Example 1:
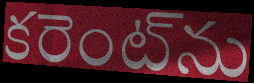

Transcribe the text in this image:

కరెంట్‌ను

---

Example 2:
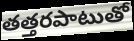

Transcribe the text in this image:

తత్తరపాటుతో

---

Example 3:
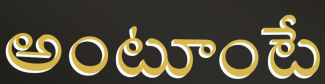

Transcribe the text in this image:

అంటూంటే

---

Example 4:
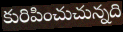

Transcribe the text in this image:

కురిపించుచున్నది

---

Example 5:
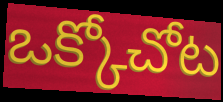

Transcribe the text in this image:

ఒక్కోచోట